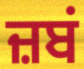
ਜ਼ਬਂ